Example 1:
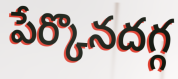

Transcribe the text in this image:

పేర్కొనదగ్గ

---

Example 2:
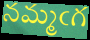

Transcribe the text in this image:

నమ్మఁగ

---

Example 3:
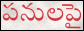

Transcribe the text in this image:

పనులపై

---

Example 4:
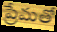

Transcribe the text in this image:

ప్రేమతో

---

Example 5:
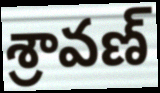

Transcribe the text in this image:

శ్రావణ్